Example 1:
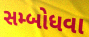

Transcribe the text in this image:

સમ્બોધવા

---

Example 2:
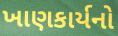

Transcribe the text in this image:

ખાણકાર્યનો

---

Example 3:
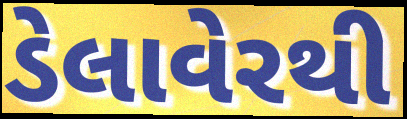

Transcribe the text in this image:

ડેલાવેરથી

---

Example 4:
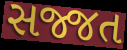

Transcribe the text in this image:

સજ્જત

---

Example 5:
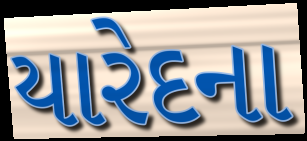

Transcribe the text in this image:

યારેદના